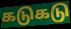
கடுகடு